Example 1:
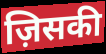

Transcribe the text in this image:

ज़िसकी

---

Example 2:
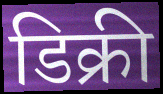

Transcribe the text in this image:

डिक्री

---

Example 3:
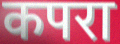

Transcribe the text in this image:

कपरा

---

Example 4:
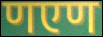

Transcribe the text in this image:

णएण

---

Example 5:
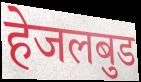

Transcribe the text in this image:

हेजलबुड